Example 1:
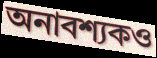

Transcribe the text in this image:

অনাবশ্যকও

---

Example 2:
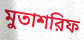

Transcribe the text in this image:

মুতাশরিফ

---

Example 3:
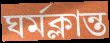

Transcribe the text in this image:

ঘর্মক্লান্ত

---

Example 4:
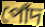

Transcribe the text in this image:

পোঁদ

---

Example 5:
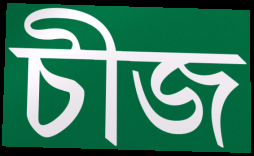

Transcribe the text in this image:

চীজ